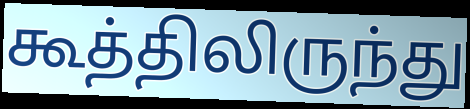
கூத்திலிருந்து